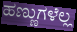
ಹಣ್ಣುಗಳೆಲ್ಲ